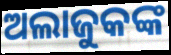
ଅଲାଜୁକଙ୍କ